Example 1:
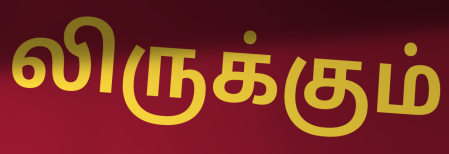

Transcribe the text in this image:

லிருக்கும்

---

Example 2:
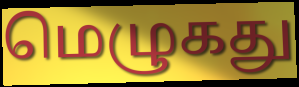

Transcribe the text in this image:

மெழுகது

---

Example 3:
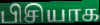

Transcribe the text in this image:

பிசியாக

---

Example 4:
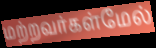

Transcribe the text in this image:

மற்றவர்கள்மேல்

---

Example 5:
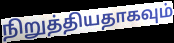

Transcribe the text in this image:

நிறுத்தியதாகவும்